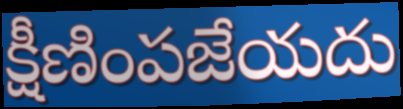
క్షీణింపజేయదు